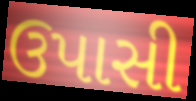
ઉપાસી